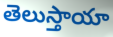
తెలుస్తాయా